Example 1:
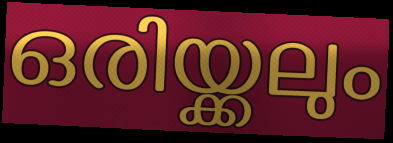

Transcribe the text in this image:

ഒരിയ്ക്കലും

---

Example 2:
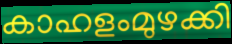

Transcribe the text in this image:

കാഹളംമുഴക്കി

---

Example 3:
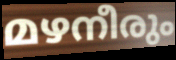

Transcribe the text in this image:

മഴനീരും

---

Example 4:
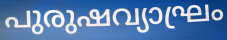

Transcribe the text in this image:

പുരുഷവ്യാഘ്രം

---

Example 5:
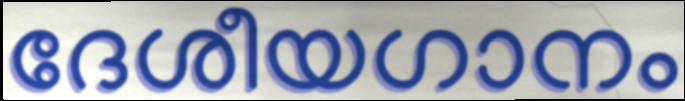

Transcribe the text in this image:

ദേശീയഗാനം